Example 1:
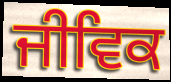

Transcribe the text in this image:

ਜੀਵਿਕ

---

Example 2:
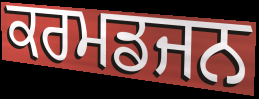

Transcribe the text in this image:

ਕਰਮਡਜਨ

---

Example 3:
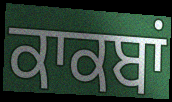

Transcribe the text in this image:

ਕਾਕਬਾਂ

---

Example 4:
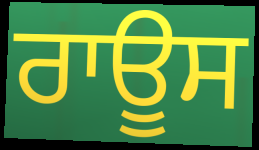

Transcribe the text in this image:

ਰਾਊਸ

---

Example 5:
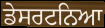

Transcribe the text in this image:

ਡੇਸਰਟਨਿਆ